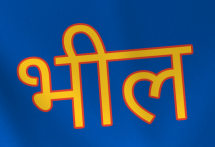
भील